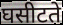
घसीटते